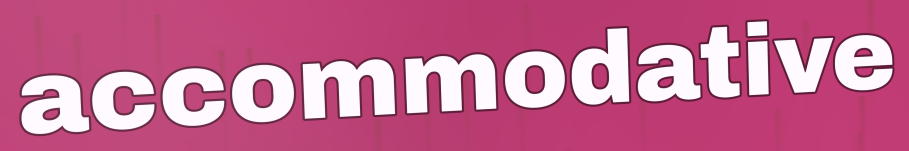
accommodative